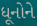
ધૂનોને